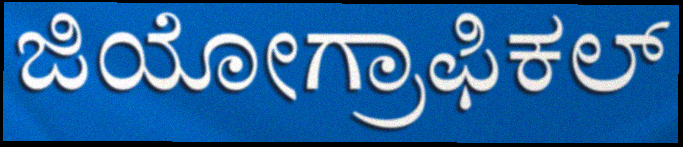
ಜಿಯೋಗ್ರಾಫಿಕಲ್